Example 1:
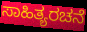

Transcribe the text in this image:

ಸಾಹಿತ್ಯರಚನೆ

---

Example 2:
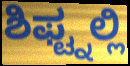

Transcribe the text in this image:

ಶಿಫ್ಟ್ನಲ್ಲಿ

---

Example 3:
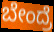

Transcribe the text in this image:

ಬೇಂದ್ರೆ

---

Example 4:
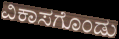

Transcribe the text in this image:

ವಿಕಾಸಗೊಂಡು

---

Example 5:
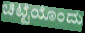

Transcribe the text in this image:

ಚಿಟ್ಟೆಯೊಂದು